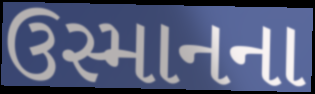
ઉસ્માનના